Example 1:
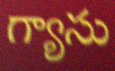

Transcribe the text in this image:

గ్యాసు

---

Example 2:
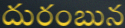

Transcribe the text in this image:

దురంబున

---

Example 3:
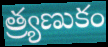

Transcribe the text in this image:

త్ర్యణుకం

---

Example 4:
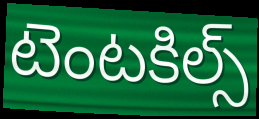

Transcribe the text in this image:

టెంటకిల్స్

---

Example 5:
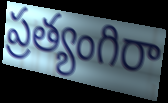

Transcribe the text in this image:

ప్రత్యంగిరా